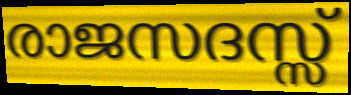
രാജസദസ്സ്